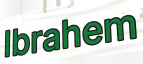
Ibrahem